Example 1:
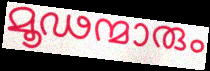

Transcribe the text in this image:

മൂഢന്മാരും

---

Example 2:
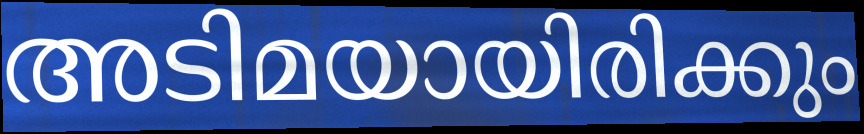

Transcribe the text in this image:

അടിമയായിരിക്കും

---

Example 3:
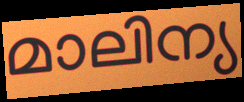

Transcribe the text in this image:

മാലിന്യ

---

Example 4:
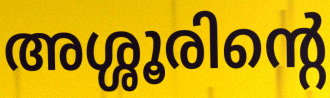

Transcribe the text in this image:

അശ്ശൂരിന്റെ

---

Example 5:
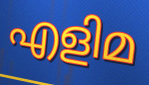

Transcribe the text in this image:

എളിമ